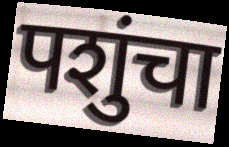
पशुंचा